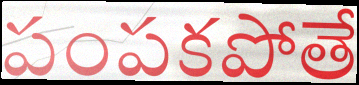
పంపకపోతే